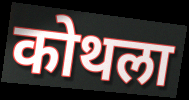
कोथला